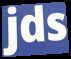
jds